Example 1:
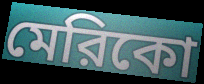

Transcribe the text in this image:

মেরিকো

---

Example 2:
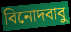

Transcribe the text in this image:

বিনোদবাবু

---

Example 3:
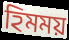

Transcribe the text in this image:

হিমময়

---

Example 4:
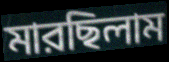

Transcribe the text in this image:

মারছিলাম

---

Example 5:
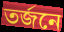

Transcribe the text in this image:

তর্জনে